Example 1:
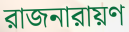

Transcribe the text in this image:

রাজনারায়ণ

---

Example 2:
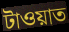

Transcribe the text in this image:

টাওয়াত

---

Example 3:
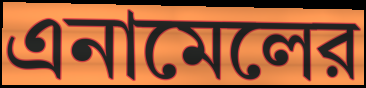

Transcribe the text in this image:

এনামেলের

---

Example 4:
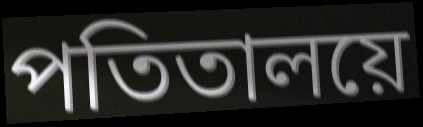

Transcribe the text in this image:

পতিতালয়ে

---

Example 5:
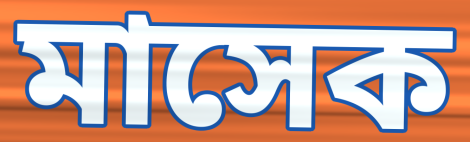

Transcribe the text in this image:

মাসেক